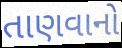
તાણવાનો